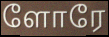
ளோரே